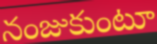
నంజుకుంటూ